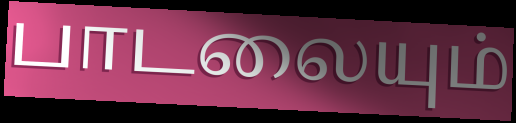
பாடலையும்